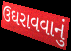
ઉઘરાવવાનું